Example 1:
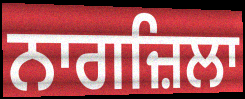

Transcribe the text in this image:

ਨਾਗਜ਼ਿਲਾ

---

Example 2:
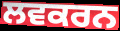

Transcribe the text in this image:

ਲਵਕਰਨ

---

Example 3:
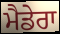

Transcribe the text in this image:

ਮੈਡੇਰਾ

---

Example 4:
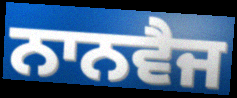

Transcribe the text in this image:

ਨਾਨਵੈਜ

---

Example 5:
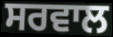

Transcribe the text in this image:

ਸਰਵਾਲ